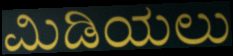
ಮಿಡಿಯಲು